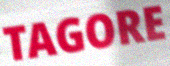
TAGORE